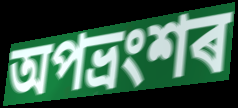
অপভ্ৰংশৰ